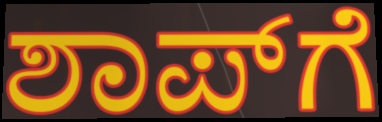
ಶಾಪ್‌ಗೆ